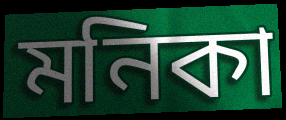
মনিকা